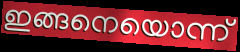
ഇങ്ങനെയൊന്ന്